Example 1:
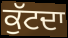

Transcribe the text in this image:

ਕੁੱਟਦਾ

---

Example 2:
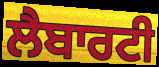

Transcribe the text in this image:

ਲੈਬਾਰਟੀ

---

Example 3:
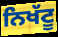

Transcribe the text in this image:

ਨਿਖੱਟੂ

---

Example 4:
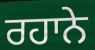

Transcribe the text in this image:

ਰਹਾਨੇ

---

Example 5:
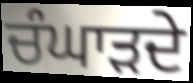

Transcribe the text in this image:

ਚੰਘਾੜਦੇ